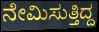
ನೇಮಿಸುತ್ತಿದ್ದ